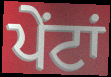
ਪੇਂਟਾਂ